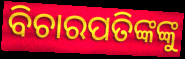
ବିଚାରପତିଙ୍କଙ୍କୁ